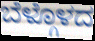
ಬೆಳ್ಗೊಳದ